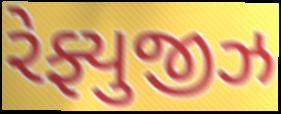
રેફ્યુજીઝ